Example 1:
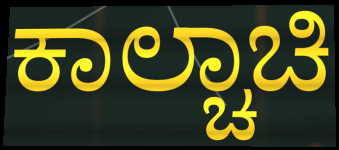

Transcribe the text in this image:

ಕಾಲ್ಚಾಚಿ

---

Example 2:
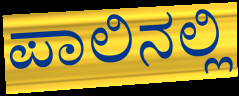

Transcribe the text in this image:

ಪಾಲಿನಲ್ಲಿ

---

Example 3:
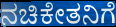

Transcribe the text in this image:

ನಚಿಕೇತನಿಗೆ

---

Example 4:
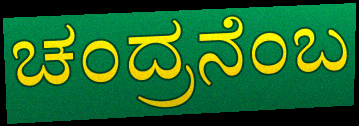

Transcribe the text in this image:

ಚಂದ್ರನೆಂಬ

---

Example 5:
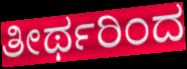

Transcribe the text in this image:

ತೀರ್ಥರಿಂದ